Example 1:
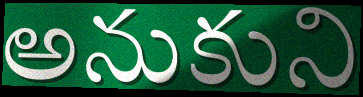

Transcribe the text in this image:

అనుకుని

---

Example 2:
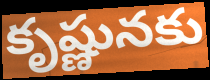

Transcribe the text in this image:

కృష్ణునకు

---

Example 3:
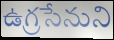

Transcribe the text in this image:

ఉగ్రసేనుని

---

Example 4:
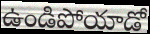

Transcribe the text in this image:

ఉండిపోయాడో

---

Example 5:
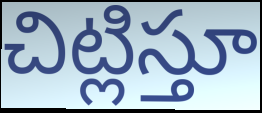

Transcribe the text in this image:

చిట్లిస్తూ